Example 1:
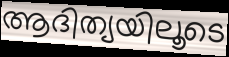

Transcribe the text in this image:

ആദിത്യയിലൂടെ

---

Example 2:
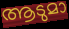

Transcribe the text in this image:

ആടുമാ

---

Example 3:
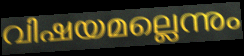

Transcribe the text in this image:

വിഷയമല്ലെന്നും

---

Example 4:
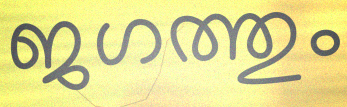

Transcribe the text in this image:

ജഗത്തും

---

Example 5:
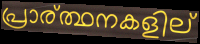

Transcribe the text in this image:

പ്രാര്ത്ഥനകളില്